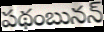
పథంబునన్